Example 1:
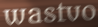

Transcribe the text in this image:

wastuo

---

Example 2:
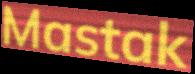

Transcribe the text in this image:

Mastak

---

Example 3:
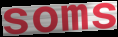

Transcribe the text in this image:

soms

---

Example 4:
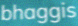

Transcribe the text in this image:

bhaggis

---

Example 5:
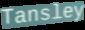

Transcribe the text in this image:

Tansley